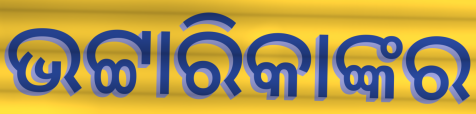
ଭଟ୍ଟାରିକାଙ୍କର